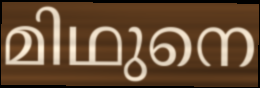
മിഥുനെ